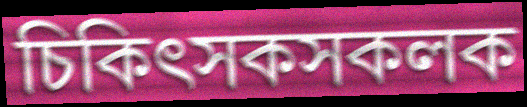
চিকিৎসকসকলক